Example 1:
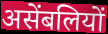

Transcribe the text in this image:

असेंबलियों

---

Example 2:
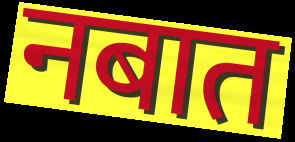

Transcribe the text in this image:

नबात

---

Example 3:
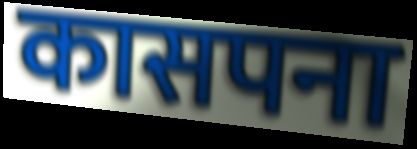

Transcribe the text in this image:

कासपना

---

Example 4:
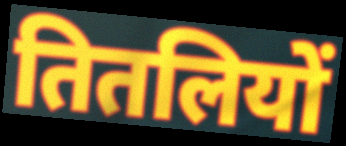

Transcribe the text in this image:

तितलियों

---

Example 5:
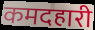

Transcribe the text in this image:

कमदहारी